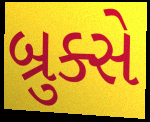
બ્રુક્સે